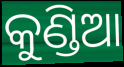
କୁଣ୍ଡିଆ